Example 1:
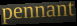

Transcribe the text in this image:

pennant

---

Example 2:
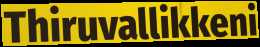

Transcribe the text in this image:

Thiruvallikkeni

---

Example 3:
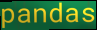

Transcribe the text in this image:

pandas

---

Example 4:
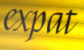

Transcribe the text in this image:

expat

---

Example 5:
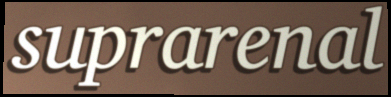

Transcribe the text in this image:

suprarenal